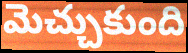
మెచ్చుకుంది